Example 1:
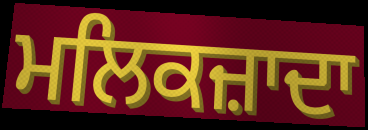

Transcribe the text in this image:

ਮਲਿਕਜ਼ਾਦਾ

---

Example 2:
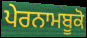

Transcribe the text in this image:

ਪੇਰਨਾਮਬੂਕੋ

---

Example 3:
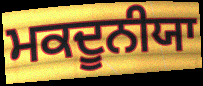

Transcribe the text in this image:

ਮਕਦੂਨੀਯਾ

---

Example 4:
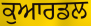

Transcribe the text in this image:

ਕੁਆਰਡਲ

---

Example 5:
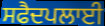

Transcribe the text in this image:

ਸਫੈਦਪਲਾਈ